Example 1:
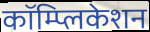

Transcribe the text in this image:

कॉम्प्लिकेशन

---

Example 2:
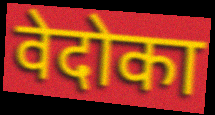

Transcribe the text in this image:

वेदोका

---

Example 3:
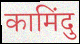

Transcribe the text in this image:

कामिंदु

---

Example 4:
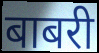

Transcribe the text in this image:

बाबरी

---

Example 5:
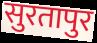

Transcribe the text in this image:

सुरतापुर